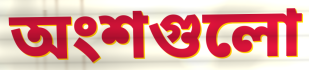
অংশগুলো